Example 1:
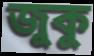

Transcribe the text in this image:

জুকু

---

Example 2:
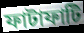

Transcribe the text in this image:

ফাটাফাটি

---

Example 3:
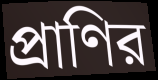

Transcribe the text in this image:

প্রাণির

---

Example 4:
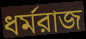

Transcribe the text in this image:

ধর্মরাজ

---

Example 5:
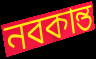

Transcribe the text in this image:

নবকান্ত